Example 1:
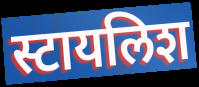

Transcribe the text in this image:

स्टायलिश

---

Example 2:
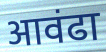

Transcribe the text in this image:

आवंढा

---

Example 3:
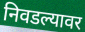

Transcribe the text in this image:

निवडल्यावर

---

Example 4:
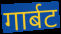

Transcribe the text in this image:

गार्बट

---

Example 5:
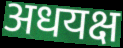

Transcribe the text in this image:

अधयक्ष